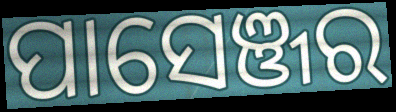
ପାସେଞ୍ଜର